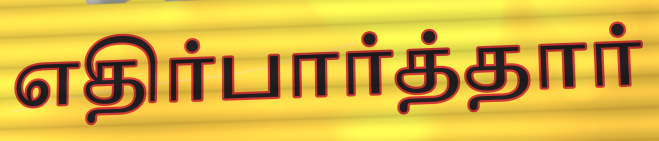
எதிர்பார்த்தார்